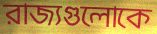
রাজ্যগুলোকে